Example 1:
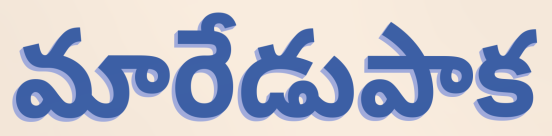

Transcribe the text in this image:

మారేడుపాక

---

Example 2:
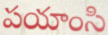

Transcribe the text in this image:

పయాంసి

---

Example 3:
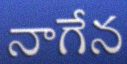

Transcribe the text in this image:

నాగేన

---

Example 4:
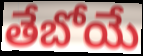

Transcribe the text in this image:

తేబోయే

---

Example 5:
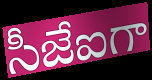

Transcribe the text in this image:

సీజేఐగా